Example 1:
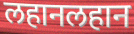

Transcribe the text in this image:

लहानलहान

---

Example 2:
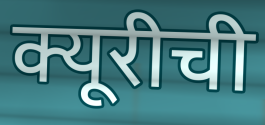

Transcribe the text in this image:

क्यूरीची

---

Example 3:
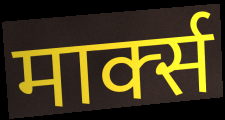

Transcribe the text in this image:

मार्क्‍स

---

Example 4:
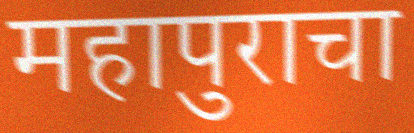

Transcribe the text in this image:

महापुराचा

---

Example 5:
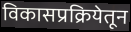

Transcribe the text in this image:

विकासप्रक्रियेतून